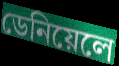
ডেনিয়েলে